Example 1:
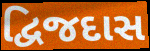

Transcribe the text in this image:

દ્વિજદાસ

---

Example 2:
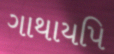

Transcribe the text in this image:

ગાથાયપિ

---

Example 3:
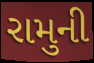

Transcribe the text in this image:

રામુની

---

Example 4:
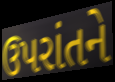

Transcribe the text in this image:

ઉપરાંતને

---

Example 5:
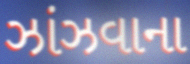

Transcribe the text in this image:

ઝાંઝવાના